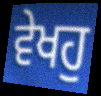
ਵੇਖਹੁ